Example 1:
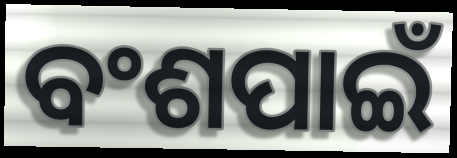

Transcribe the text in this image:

ବଂଶପାଇଁ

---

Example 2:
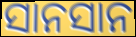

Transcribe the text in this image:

ସାନସାନ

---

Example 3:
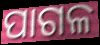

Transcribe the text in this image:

ପାଗଳ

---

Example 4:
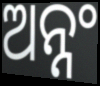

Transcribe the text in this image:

ଅନ୍ନଂ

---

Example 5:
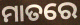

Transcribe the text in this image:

ମାତରେ